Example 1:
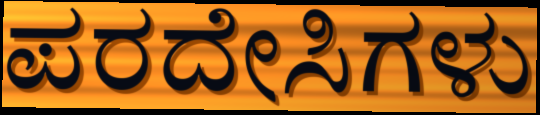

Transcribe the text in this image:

ಪರದೇಸಿಗಳು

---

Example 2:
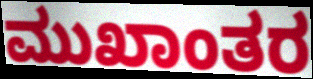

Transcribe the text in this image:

ಮುಖಾಂತರ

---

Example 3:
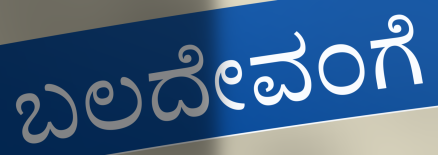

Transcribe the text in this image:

ಬಲದೇವಂಗೆ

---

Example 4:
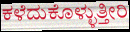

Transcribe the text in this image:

ಕಳೆದುಕೊಳ್ಳುತ್ತೀರಿ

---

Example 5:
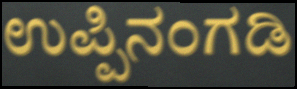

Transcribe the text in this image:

ಉಪ್ಪಿನಂಗಡಿ